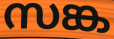
സങ്ക